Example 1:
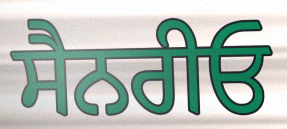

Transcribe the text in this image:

ਸੈਨਰੀਓ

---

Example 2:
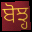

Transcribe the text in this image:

ਬੋਝ੍ਹ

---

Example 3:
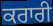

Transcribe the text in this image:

ਕਰਾਰੀ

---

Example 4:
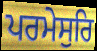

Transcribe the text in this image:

ਪਰਮੇਸੁਰਿ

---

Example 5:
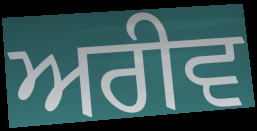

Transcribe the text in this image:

ਅਰੀਵ